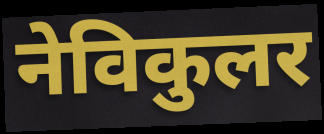
नेविकुलर